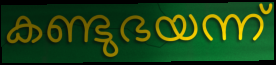
കണ്ടുഭയന്ന്